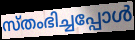
സ്തംഭിച്ചപ്പോൾ